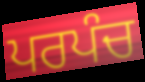
ਪਰਪੰਚ